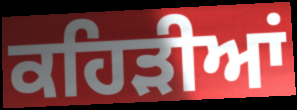
ਕਹਿੜੀਆਂ